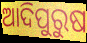
ଆଦିପୁରୁଷ